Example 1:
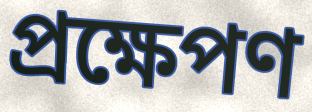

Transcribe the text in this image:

প্রক্ষেপণ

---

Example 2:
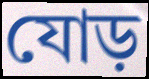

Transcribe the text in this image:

যোড়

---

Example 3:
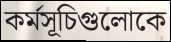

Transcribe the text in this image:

কর্মসূচিগুলোকে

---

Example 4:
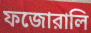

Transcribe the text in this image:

ফজোরালি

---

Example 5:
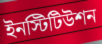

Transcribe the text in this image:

ইনস্টিটিউশন